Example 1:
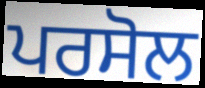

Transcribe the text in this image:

ਪਰਸੋਲ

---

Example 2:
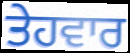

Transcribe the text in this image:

ਤੇਹਵਾਰ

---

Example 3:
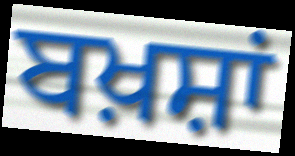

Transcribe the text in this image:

ਬਖ਼ਸ਼ਾਂ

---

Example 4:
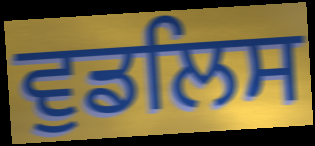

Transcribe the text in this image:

ਵੁਡਲਿਸ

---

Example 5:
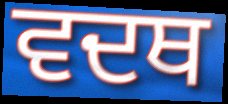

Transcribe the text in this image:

ਵਦਥ